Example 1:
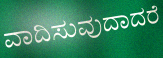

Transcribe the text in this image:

ವಾದಿಸುವುದಾದರೆ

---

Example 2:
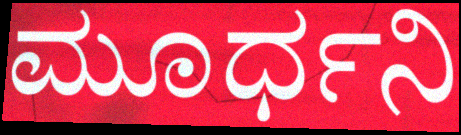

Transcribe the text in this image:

ಮೂರ್ಧನಿ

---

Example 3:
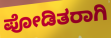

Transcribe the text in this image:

ಪೋಡಿತರಾಗಿ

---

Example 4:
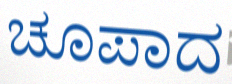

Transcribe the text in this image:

ಚೂಪಾದ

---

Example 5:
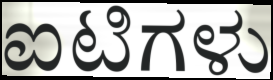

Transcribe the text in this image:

ಐಟಿಗಳು